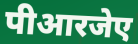
पीआरजेए